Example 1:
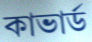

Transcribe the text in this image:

কাভার্ড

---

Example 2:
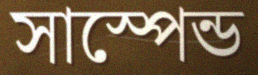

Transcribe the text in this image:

সাস্পেন্ড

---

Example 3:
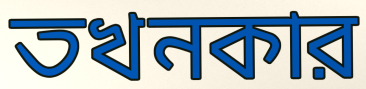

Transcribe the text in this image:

তখনকার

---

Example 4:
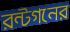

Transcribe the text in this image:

রন্টগনের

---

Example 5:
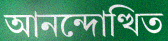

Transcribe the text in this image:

আনন্দোত্থিত